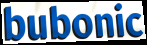
bubonic